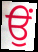
ਉਂ